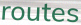
routes